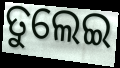
ତୁଲେଇ